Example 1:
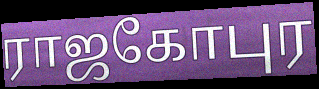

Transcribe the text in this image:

ராஜகோபுர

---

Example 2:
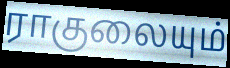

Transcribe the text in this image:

ராகுலையும்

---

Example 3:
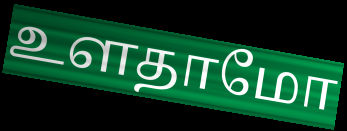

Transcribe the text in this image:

உளதாமோ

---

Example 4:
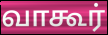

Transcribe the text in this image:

வாகூர்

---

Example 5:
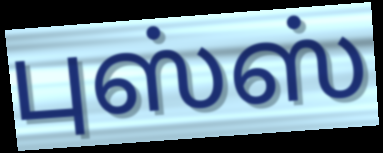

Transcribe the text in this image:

புஸ்ஸ்